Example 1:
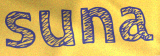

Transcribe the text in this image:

suna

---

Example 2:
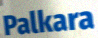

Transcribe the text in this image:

Palkara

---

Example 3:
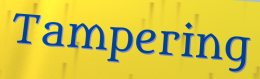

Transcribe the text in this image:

Tampering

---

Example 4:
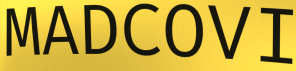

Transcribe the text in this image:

MADCOVI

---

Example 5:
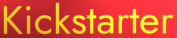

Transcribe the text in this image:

Kickstarter